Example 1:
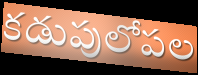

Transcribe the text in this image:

కడుపులోపల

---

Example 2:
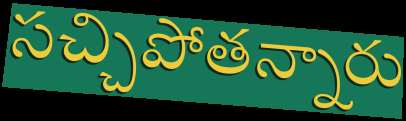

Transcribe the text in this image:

సచ్చిపోతన్నారు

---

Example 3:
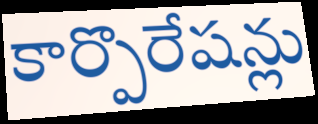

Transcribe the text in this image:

కార్పొరేషన్లు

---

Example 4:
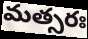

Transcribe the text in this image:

మత్సరః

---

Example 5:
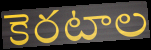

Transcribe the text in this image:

కెరటాల